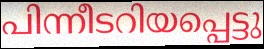
പിന്നീടറിയപ്പെട്ടു